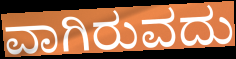
ವಾಗಿರುವದು